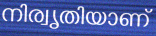
നിര്വൃതിയാണ്